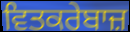
ਵਿਤਕਰੇਬਾਜ਼